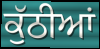
ਕੁੱਠੀਆਂ